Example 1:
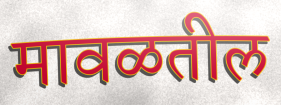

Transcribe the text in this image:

मावळतील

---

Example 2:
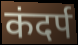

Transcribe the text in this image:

कंदर्प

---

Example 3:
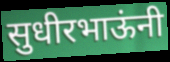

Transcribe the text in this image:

सुधीरभाऊंनी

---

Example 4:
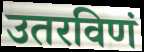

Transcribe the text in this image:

उतरविणं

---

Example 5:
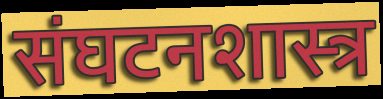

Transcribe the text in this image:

संघटनशास्त्र